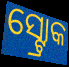
ସ୍ଟ୍ରୋକ